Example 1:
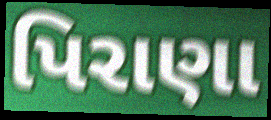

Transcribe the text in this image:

પિરાણા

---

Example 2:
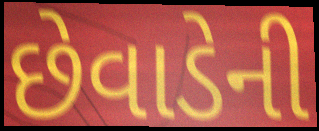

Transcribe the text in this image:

છેવાડેની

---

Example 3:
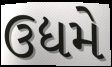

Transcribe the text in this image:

ઉદ્યમે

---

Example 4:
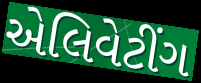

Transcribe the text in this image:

એલિવેટીંગ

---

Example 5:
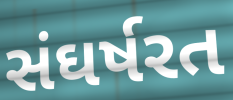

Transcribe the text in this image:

સંઘર્ષરત